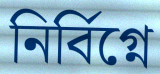
নির্বিগ্নে